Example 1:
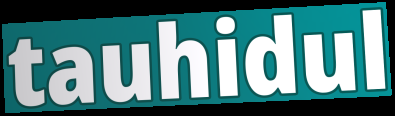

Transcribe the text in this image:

tauhidul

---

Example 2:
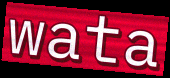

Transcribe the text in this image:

wata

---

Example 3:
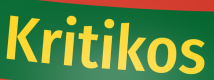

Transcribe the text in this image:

Kritikos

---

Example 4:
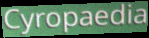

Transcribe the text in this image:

Cyropaedia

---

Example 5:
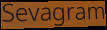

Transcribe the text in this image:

Sevagram